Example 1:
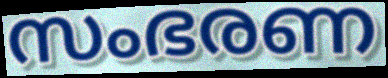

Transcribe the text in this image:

സംഭരണ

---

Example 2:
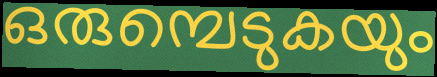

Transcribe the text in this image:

ഒരുമ്പെടുകയും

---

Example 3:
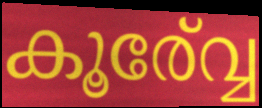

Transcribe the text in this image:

കൂര്വ്വേ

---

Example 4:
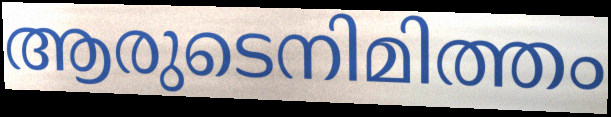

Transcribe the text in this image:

ആരുടെനിമിത്തം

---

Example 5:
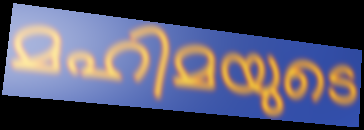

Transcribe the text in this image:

മഹിമയുടെ